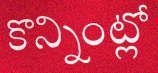
కొన్నింట్లో